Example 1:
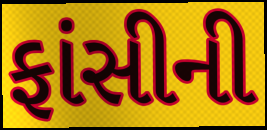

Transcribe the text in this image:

ફાંસીની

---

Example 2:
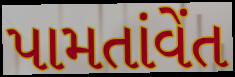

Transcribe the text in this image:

પામતાંવેંત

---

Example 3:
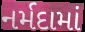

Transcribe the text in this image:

નર્મદામાં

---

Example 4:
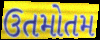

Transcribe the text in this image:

ઉતમોતમ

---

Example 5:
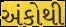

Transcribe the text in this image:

અંકોથી